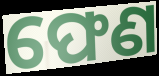
ଫେଣ